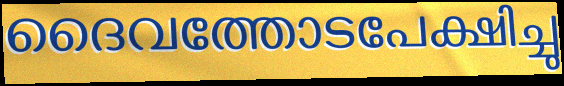
ദൈവത്തോടപേക്ഷിച്ചു